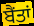
ਬੈਂਤਾਂ